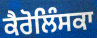
ਕੈਰੋਲਿੰਸਕਾ